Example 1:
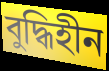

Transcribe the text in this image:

বুদ্ধিহীন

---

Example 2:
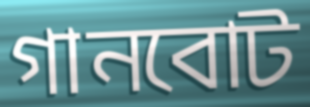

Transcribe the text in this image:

গানবোট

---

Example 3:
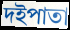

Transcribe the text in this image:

দইপাতা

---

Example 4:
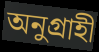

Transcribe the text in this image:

অনুগ্রাহী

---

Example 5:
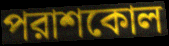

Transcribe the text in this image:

পরাশকোল